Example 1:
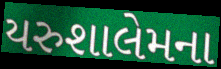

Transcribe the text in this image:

યરુશાલેમના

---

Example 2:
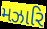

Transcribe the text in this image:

મઝારિ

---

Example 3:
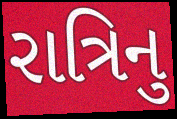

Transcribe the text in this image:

રાત્રિનુ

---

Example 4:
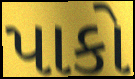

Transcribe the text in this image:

પાકો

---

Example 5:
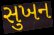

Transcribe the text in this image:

સુખન